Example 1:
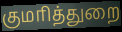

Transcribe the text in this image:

குமரித்துறை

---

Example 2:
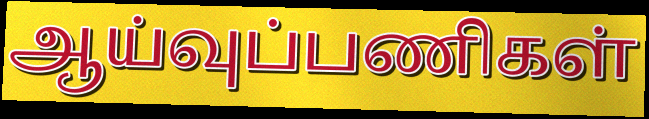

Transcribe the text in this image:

ஆய்வுப்பணிகள்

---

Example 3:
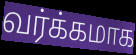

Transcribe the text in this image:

வர்க்கமாக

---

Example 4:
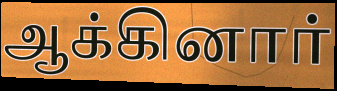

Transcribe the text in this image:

ஆக்கினார்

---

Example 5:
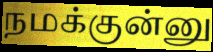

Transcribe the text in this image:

நமக்குன்னு